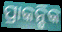
ପ୍ରାକନ୍ଦିକ